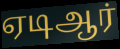
ஏடிஆர்